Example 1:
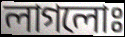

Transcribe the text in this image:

লাগলোঃ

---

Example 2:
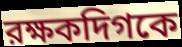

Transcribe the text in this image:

রক্ষকদিগকে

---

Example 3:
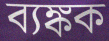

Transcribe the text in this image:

ব্যঙ্কক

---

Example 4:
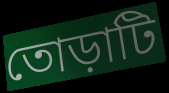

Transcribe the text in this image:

তোড়াটি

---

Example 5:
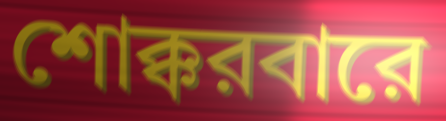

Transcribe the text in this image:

শোক্করবারে